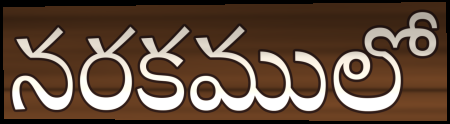
నరకములో